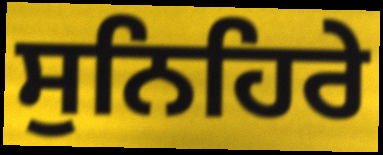
ਸੁਨਿਹਿਰੇ